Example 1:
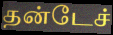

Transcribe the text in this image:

தன்டேச்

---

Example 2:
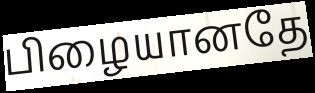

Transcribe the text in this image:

பிழையானதே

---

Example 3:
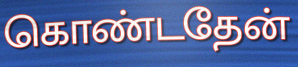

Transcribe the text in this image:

கொண்டதேன்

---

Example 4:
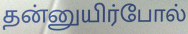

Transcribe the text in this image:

தன்னுயிர்போல்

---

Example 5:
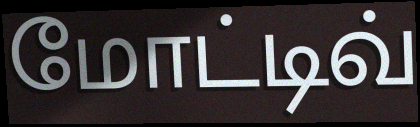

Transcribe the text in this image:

மோட்டிவ்